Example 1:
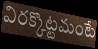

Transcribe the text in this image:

విరక్కొట్టమంటే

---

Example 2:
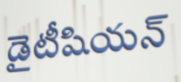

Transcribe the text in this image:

డైటీషియన్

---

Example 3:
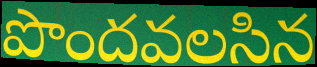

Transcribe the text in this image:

పొందవలసిన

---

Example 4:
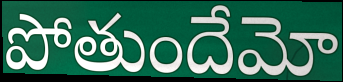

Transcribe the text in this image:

పోతుందేమో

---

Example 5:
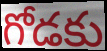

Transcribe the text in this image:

గోడకు